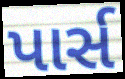
પાર્સ